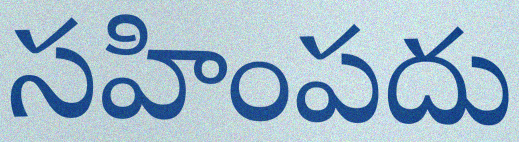
సహింపదు